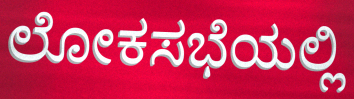
ಲೋಕಸಭೆಯಲ್ಲಿ